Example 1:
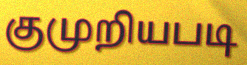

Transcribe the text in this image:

குமுறியபடி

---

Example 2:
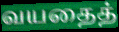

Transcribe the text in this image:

வயதைத்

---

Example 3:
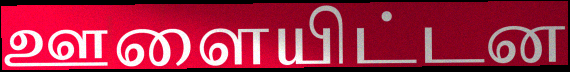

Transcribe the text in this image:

ஊளையிட்டன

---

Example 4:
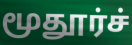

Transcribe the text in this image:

மூதூர்ச்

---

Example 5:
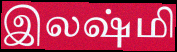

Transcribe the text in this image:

இலஷ்மி